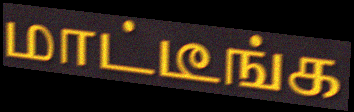
மாட்டீங்க